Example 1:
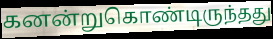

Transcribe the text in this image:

கனன்றுகொண்டிருந்தது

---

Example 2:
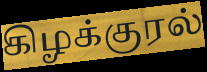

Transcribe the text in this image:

கிழக்குரல்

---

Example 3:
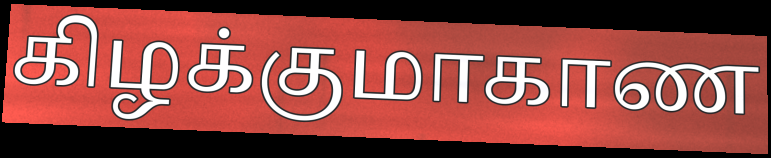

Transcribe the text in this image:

கிழக்குமாகாண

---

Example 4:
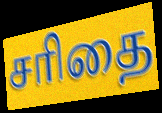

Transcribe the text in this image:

சரிதை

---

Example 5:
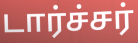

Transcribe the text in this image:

டார்ச்சர்